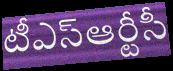
టీఎస్ఆర్టీసీ